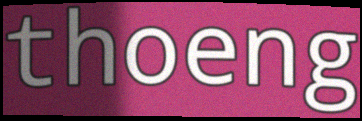
thoeng